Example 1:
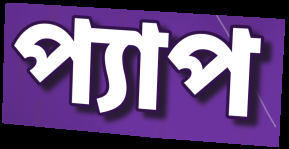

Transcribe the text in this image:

প্যাপ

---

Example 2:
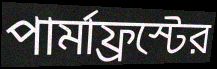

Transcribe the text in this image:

পার্মাফ্রস্টের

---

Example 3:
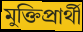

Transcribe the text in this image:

মুক্তিপ্রার্থী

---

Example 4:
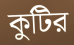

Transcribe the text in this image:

কুটির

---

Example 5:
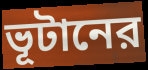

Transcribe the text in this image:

ভূটানের